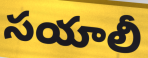
సయాలీ